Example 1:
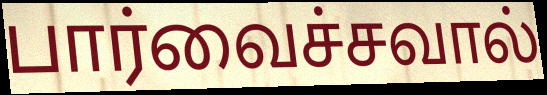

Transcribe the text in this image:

பார்வைச்சவால்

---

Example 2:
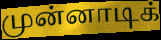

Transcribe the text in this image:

முன்னாடிக்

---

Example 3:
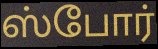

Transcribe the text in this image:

ஸ்போர்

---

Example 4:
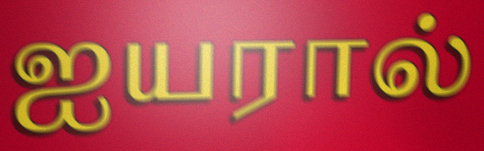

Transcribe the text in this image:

ஐயரால்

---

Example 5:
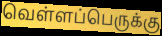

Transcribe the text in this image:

வெள்ளப்பெருக்கு